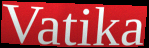
Vatika